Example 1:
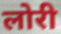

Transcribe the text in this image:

लोरी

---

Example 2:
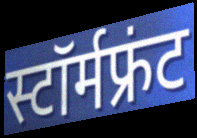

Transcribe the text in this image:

स्टॉर्मफ्रंट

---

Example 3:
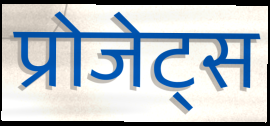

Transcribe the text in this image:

प्रोजेट्स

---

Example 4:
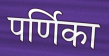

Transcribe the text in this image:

पर्णिका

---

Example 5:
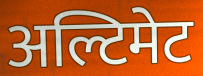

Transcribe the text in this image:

अल्टिमेट